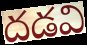
దడవి